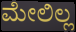
ಮೇಲಿಲ್ಲ